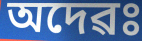
অদেৱঃ